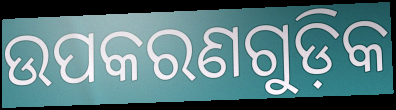
ଉପକରଣଗୁଡ଼ିକ